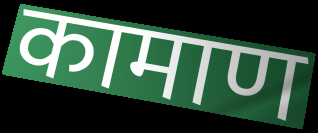
कामाण